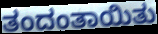
ತಂದಂತಾಯಿತು